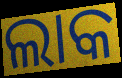
ଲାକ